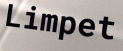
Limpet